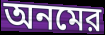
অনমের